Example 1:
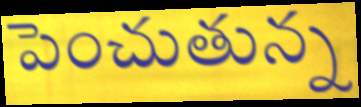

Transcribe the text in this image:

పెంచుతున్న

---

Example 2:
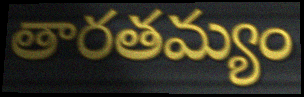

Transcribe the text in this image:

తారతమ్యం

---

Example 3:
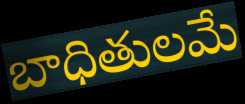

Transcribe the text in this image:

బాధితులమే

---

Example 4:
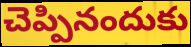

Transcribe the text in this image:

చెప్పినందుకు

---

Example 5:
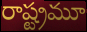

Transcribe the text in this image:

రాష్ట్రమూ